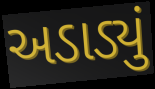
અડાડ્યું